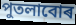
পুতলাবোৰ